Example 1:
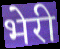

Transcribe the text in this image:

भेरी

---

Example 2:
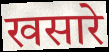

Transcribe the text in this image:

खसारे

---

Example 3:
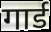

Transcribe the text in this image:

गार्ड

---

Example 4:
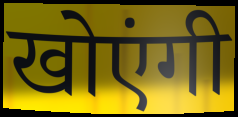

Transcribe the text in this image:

खोएंगी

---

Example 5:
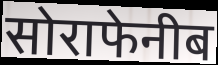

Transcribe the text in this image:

सोराफेनीब